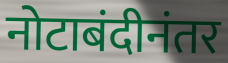
नोटाबंदीनंतर